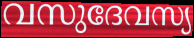
വസുദേവസ്യ